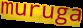
muruga